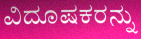
ವಿದೂಷಕರನ್ನು